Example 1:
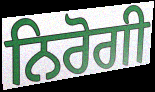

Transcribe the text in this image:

ਨਿਰੋਗੀ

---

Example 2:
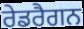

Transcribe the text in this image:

ਰੇਡਰੈਗਨ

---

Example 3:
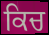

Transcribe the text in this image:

ਕਿਚ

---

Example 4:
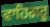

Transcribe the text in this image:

ਵਾਹਿਗਰੂ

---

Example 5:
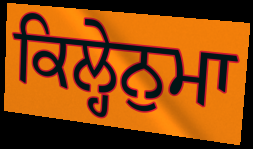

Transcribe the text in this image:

ਕਿਲ੍ਹੇਨੁਮਾ